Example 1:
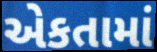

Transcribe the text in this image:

એકતામાં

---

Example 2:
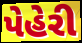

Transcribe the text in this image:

પેહેરી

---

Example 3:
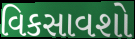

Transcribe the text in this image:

વિકસાવશો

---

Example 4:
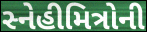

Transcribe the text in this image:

સ્નેહીમિત્રોની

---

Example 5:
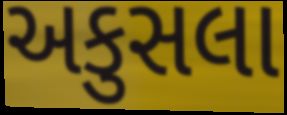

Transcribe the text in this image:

અકુસલા